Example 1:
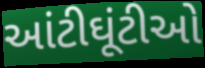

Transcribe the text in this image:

આંટીઘૂંટીઓ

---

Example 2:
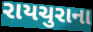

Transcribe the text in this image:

રાયચુરાના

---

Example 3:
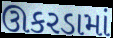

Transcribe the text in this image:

ઊકરડામાં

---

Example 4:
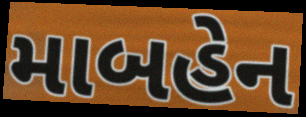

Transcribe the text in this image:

માબહેન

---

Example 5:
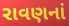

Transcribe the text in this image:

રાવણનાં